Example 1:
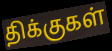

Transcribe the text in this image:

திக்குகள்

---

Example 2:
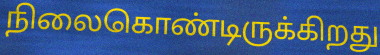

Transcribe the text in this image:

நிலைகொண்டிருக்கிறது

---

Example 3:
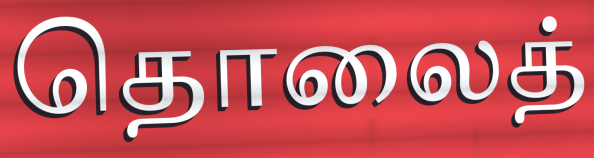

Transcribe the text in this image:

தொலைத்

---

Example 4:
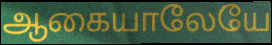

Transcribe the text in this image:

ஆகையாலேயே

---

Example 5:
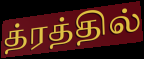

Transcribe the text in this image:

த்ரத்தில்